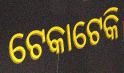
ଟେକାଟେକି